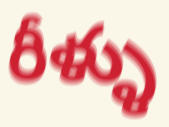
రీళ్ళు